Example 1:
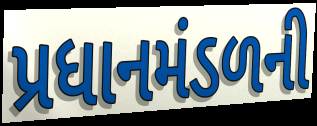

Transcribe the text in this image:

પ્રધાનમંડળની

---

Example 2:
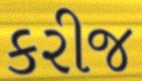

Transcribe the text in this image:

કરીજ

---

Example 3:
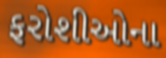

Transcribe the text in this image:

ફરોશીઓના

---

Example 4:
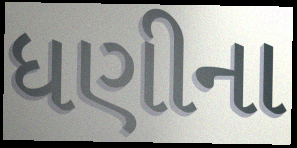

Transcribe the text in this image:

ધણીના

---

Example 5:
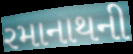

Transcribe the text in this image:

રમાનાથની